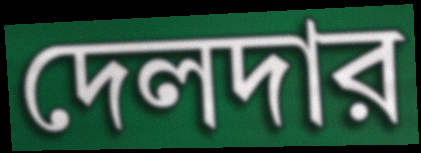
দেলদার